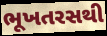
ભૂખતરસથી